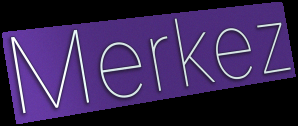
Merkez